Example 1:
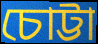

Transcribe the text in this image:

চোট্টা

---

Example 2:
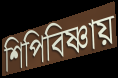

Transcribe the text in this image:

শিপিবিষ্ণায়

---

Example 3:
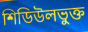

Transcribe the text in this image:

শিডিউলভুক্ত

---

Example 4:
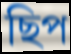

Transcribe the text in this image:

ছিপ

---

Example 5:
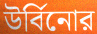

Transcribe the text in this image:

উর্বিনোর